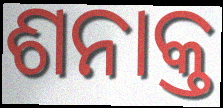
ଶନାକ୍ତ